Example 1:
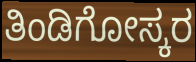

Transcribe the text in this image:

ತಿಂಡಿಗೋಸ್ಕರ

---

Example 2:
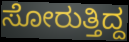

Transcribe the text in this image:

ಸೋರುತ್ತಿದ್ದ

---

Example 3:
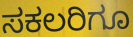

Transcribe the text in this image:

ಸಕಲರಿಗೂ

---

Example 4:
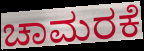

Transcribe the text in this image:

ಚಾಮರಕೆ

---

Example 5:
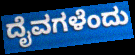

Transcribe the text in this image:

ದೈವಗಳೆಂದು